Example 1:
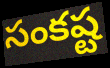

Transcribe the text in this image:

సంకష్ట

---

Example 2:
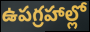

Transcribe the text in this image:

ఉపగ్రహాల్లో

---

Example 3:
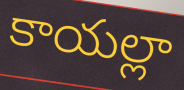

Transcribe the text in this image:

కాయల్లా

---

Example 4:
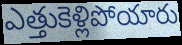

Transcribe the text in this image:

ఎత్తుకెళ్లిపోయారు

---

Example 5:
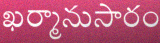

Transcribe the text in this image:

ఖర్మానుసారం